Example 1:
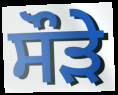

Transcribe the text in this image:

ਸੌੜੇ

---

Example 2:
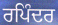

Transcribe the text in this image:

ਰਪਿੰਦਰ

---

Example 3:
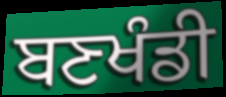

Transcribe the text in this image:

ਬਣਖੰਡੀ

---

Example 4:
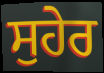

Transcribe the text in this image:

ਸੁਹੇਰ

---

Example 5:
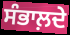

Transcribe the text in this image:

ਸੰਭਾਲ਼ਦੇ